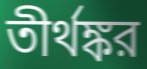
তীর্থঙ্কর